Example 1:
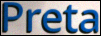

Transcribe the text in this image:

Preta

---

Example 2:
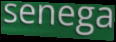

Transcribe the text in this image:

senega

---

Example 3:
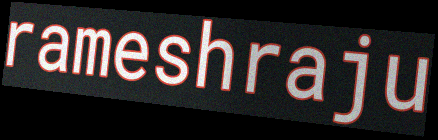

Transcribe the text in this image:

rameshraju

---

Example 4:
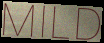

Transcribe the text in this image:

MILD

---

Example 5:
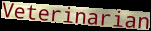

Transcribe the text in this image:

Veterinarian